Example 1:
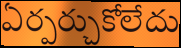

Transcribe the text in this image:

ఏర్పర్చుకోలేదు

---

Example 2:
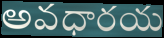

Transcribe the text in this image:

అవధారయ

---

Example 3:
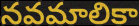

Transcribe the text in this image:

నవమాలికా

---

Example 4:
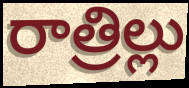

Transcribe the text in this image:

రాత్రిల్లు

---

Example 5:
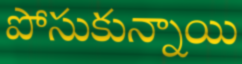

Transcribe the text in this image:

పోసుకున్నాయి